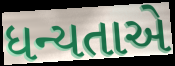
ધન્યતાએ